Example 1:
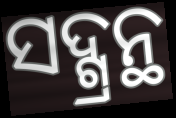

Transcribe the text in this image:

ସଦ୍ଗ୍ରନ୍ଥ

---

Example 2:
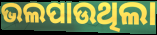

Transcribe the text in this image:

ଭଲପାଉଥିଲା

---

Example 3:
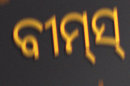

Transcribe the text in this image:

ବୀମ୍‌ସ୍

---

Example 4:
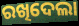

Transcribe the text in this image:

ରଖିଦେଲା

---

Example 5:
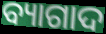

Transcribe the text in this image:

ବ୍ୟାଗାଦ